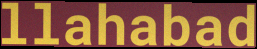
llahabad